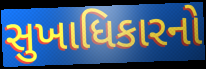
સુખાધિકારનો